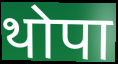
थोपा